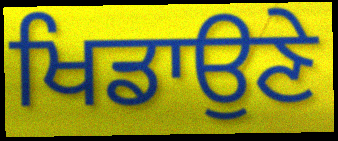
ਖਿਡਾਉਣੇ